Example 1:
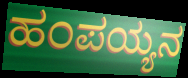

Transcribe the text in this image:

ಹಂಪಯ್ಯನ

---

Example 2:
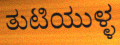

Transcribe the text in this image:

ತುಟಿಯುಳ್ಳ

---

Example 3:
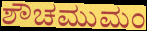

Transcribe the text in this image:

ಶೌಚಮುಮಂ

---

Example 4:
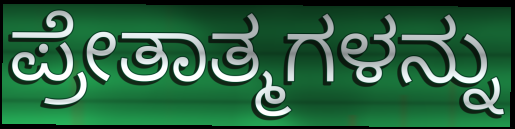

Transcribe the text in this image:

ಪ್ರೇತಾತ್ಮಗಳನ್ನು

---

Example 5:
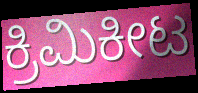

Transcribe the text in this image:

ಕ್ರಿಮಿಕೀಟ